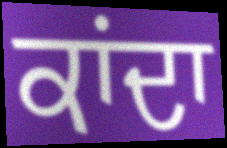
ਕਾਂਦਾ